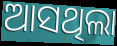
ଆସଥିଲା